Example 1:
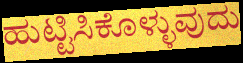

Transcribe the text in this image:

ಹುಟ್ಟಿಸಿಕೊಳ್ಳುವುದು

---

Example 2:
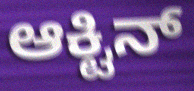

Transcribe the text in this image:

ಆಕ್ಟಿನ್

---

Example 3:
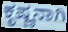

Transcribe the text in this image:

ಕೃಷ್ಣನಾಗಿ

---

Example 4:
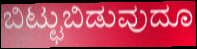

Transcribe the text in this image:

ಬಿಟ್ಟುಬಿಡುವುದೂ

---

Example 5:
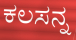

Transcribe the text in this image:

ಕಲಸನ್ನ